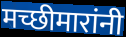
मच्छीमारांनी